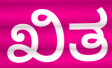
ಖಿತ